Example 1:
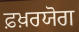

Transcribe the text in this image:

ਫ਼ਖ਼ਰਯੋਗ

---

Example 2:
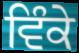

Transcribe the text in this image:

ਵਿੰਕੇ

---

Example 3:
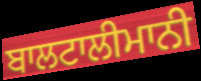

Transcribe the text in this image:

ਬਾਲਟਾਲੀਮਾਨੀ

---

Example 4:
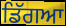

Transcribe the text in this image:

ਡਿੱਗਆ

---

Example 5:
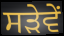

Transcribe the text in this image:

ਸੜੇਵੇਂ